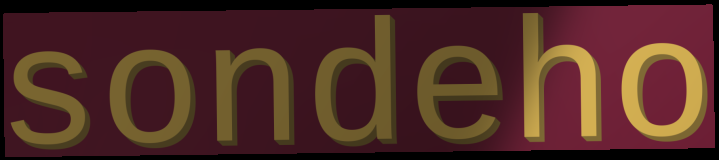
sondeho